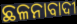
ଛଳନାବାଦୀ